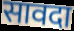
सावदा